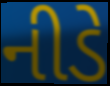
નીડે